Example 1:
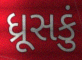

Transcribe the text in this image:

ધ્રૂસકું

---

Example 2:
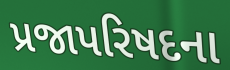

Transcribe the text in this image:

પ્રજાપરિષદના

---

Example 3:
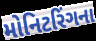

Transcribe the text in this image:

મોનિટરિંગના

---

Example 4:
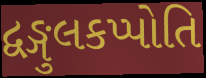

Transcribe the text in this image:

દ્વઙ્ગુલકપ્પોતિ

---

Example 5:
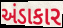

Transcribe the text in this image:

અંડાકાર